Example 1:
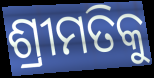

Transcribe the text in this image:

ଶ୍ରୀମତିକୁ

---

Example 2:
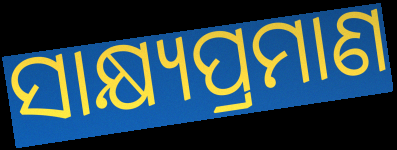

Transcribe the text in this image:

ସାକ୍ଷ୍ୟପ୍ରମାଣ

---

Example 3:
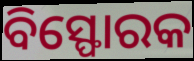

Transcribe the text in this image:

ବିସ୍ଫୋରକ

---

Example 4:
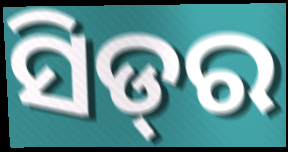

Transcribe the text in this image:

ସିଡ୍‌ର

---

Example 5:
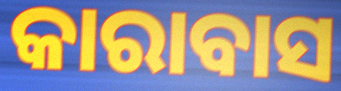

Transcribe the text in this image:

କାରାବାସ